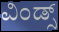
ವಿಂಡ್ಸ್